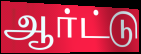
ஆர்ட்டு